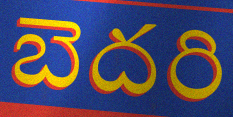
బెదరి